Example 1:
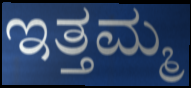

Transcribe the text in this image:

ಇತ್ತಮ್ಮ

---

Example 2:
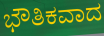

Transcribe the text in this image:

ಭೌತಿಕವಾದ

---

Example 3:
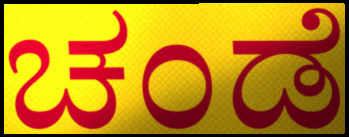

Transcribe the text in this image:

ಚಂಡೆ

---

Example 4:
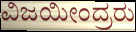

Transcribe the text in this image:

ವಿಜಯೀಂದ್ರರು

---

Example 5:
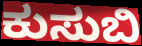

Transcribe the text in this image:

ಕುಸುಬಿ